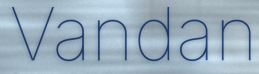
Vandan